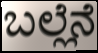
ಬಲ್ಲೆನೆ